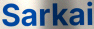
Sarkai